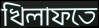
খিলাফতে